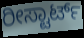
ರೀಸ್ಟಾರ್ಟ್